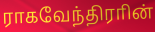
ராகவேந்திரரின்